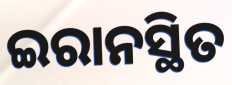
ଇରାନସ୍ଥିତ